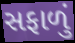
સફાળું